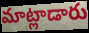
మాట్లాడారు